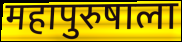
महापुरुषाला